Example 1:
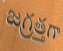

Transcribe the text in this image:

జగ్రత్తగా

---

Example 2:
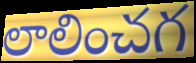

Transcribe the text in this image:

లాలించగ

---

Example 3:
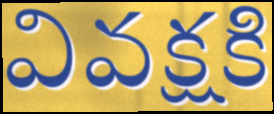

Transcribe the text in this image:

వివక్షకి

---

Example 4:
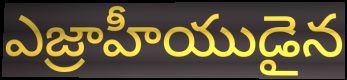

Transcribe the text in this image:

ఎజ్రాహీయుడైన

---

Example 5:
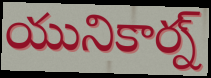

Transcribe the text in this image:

యునికార్న్